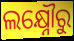
ଲକ୍ଷ୍ନୌରୁ